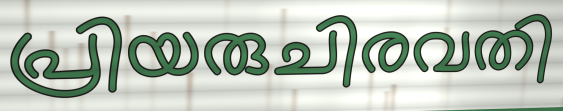
പ്രിയരുചിരവതി